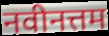
नवीनत्तम